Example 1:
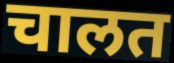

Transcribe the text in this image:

चालत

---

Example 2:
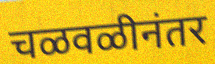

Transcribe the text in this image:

चळवळीनंतर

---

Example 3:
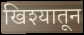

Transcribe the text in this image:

खिश्यातून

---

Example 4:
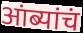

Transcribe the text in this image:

आंब्यांचं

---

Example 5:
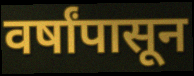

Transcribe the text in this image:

वर्षांपासून